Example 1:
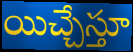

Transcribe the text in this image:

యిచ్చేస్తూ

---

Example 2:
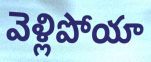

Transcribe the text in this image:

వెళ్లిపోయా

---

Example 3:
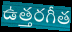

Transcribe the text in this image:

ఉత్తరగీత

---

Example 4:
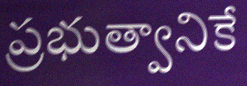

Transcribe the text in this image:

ప్రభుత్వానికే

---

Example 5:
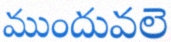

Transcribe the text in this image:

ముందువలె